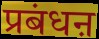
प्रबंधऩ